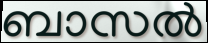
ബാസൽ